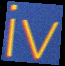
iv